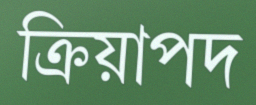
ক্রিয়াপদ